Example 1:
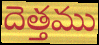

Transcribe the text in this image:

దెత్తము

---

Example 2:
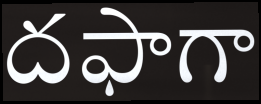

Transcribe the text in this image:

దఫాగా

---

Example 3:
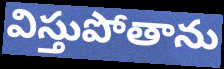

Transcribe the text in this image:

విస్తుపోతాను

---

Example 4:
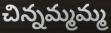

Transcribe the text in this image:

చిన్నమ్మమ్మ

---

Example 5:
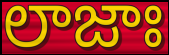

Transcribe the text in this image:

లాజాః